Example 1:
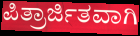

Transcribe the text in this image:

ಪಿತ್ರಾರ್ಜಿತವಾಗಿ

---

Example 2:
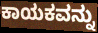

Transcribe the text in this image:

ಕಾಯಕವನ್ನು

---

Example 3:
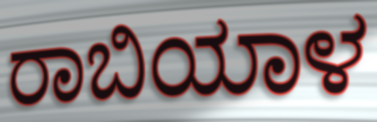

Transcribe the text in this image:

ರಾಬಿಯಾಳ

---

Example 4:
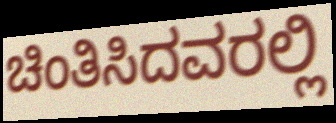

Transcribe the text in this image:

ಚಿಂತಿಸಿದವರಲ್ಲಿ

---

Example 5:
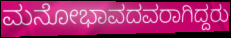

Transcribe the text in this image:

ಮನೋಭಾವದವರಾಗಿದ್ದರು